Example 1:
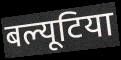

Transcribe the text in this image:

बल्यूटिया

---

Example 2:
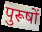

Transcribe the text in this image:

पुरूषों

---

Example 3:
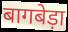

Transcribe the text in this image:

बागबेड़ा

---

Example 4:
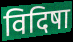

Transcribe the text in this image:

विदिषा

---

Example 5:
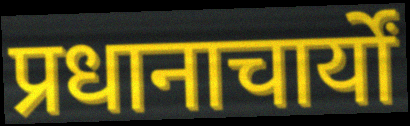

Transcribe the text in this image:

प्रधानाचार्यों